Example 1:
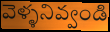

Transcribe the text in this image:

వెళ్ళనివ్వండి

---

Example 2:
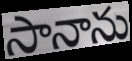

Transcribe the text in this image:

సానాను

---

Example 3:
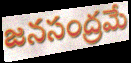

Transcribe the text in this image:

జనసంద్రమే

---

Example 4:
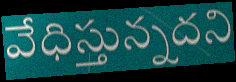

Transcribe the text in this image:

వేధిస్తున్నదని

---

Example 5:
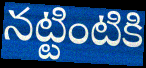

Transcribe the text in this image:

నట్టింటికి